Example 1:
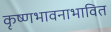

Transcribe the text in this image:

कृष्णभावनाभावित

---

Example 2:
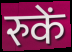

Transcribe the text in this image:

रुकें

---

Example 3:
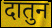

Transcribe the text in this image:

दातुन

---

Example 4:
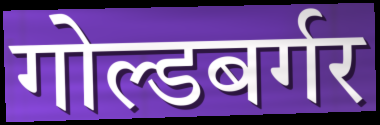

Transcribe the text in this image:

गोल्डबर्गर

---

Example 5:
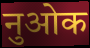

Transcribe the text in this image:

नुओक